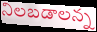
నిలబడాలన్న